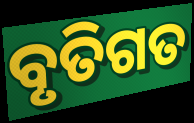
ବୃତିଗତ